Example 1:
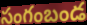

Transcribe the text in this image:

సంగంబండ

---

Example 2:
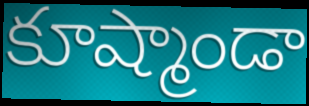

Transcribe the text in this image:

కూష్మాండా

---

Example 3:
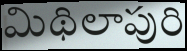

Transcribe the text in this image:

మిథిలాపురి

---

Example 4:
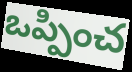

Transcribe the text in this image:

ఒప్పించ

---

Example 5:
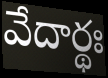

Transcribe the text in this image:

వేదార్థః